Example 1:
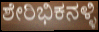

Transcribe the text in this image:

ಶೇರಿಭಿಕನಳ್ಳಿ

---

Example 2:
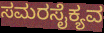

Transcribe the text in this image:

ಸಮರಸೈಕ್ಯವ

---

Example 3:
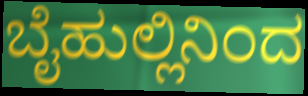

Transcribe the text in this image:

ಬೈಹುಲ್ಲಿನಿಂದ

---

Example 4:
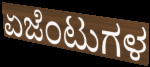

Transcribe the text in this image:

ಏಜೆಂಟುಗಳ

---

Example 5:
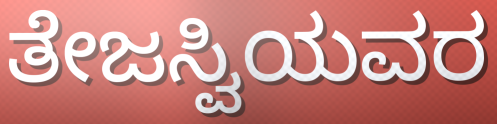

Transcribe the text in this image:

ತೇಜಸ್ವಿಯವರ